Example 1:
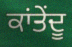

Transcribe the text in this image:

ਕਾਂਤੇਂਦੂ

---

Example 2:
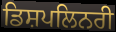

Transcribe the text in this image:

ਡਿਸ਼ਪਲਿਨਰੀ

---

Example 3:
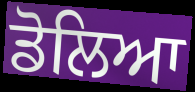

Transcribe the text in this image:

ਡੋਲਿਆ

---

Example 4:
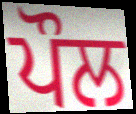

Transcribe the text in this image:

ਪੌਲ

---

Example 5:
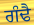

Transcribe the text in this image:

ਗੰਢੈ